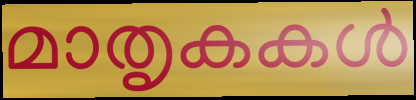
മാതൃകകൾ